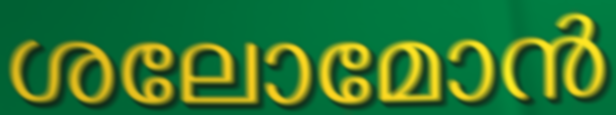
ശലോമോൻ